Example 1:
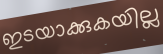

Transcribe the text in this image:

ഇടയാക്കുകയില്ല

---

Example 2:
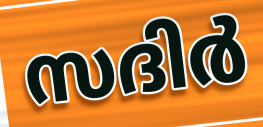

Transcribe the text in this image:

സദിർ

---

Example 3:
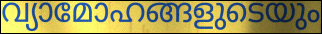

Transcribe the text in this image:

വ്യാമോഹങ്ങളുടെയും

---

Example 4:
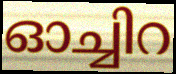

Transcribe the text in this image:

ഓച്ചിറ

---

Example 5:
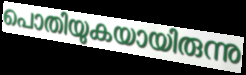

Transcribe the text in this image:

പൊതിയുകയായിരുന്നു